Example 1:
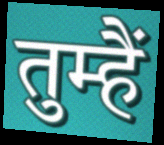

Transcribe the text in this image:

तुम्हैं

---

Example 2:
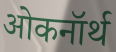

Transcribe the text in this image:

ओकनॉर्थ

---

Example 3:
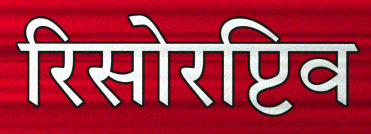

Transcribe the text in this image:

रिसोरप्टिव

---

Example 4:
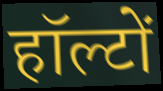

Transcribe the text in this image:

हॉल्टों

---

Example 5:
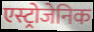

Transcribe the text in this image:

एस्ट्रोजेनिक